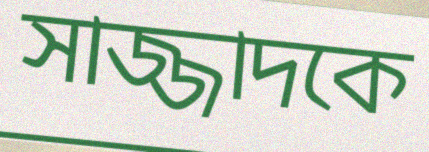
সাজ্জাদকে